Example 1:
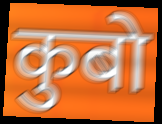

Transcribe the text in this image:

कुबो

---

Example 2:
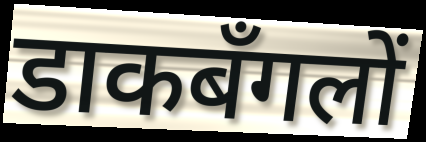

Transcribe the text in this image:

डाकबँगलों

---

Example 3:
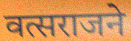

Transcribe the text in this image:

वत्सराजने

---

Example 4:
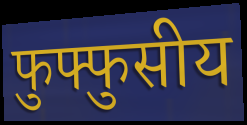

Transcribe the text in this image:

फुफ्फुसीय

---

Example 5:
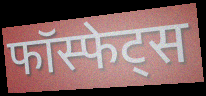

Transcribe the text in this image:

फॉस्फेट्स